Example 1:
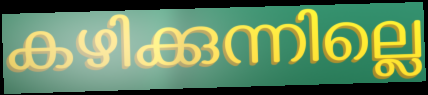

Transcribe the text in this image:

കഴിക്കുന്നില്ലെ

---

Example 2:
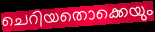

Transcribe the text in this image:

ചെറിയതൊക്കെയും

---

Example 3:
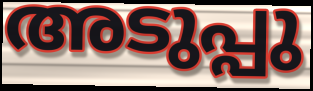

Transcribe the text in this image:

അടുപ്പു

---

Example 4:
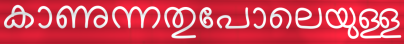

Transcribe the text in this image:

കാണുന്നതുപോലെയുള്ള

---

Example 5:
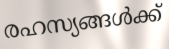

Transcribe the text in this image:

രഹസ്യങ്ങൾക്ക്